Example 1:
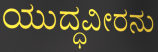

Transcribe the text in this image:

ಯುದ್ಧವೀರನು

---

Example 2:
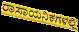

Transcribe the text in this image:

ರಾಸಾಯನಿಕಗಳಲ್ಲಿ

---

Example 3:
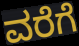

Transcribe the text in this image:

ವರೆಗೆ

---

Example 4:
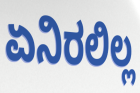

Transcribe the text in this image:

ಏನಿರಲಿಲ್ಲ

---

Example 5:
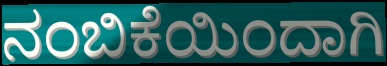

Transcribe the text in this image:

ನಂಬಿಕೆಯಿಂದಾಗಿ